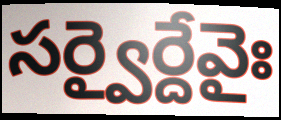
సర్వైర్దేవైః